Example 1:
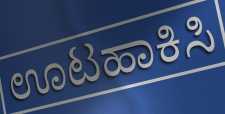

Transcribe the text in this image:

ಊಟಹಾಕಿಸಿ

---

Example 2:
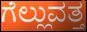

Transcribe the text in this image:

ಗೆಲ್ಲುವತ್ತ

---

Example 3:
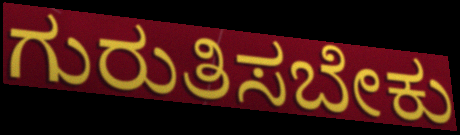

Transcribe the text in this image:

ಗುರುತಿಸಬೇಕು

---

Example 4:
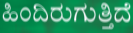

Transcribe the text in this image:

ಹಿಂದಿರುಗುತ್ತಿದೆ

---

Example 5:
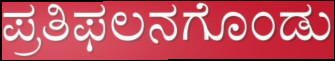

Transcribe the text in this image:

ಪ್ರತಿಫಲನಗೊಂಡು